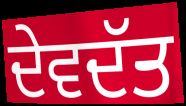
ਦੇਵਦੱਤ